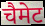
चैमेट